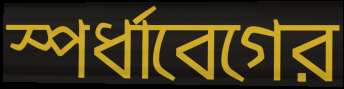
স্পর্ধাবেগের